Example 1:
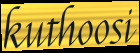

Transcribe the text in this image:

kuthoosi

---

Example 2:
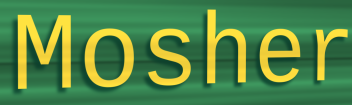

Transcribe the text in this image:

Mosher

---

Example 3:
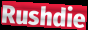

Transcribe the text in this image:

Rushdie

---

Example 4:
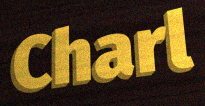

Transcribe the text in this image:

Charl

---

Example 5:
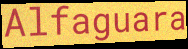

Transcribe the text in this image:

Alfaguara